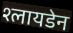
श्लायडेन